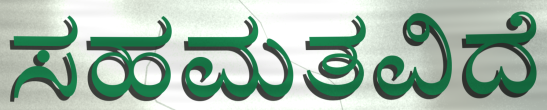
ಸಹಮತವಿದೆ